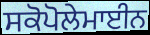
ਸਕੋਪੋਲੇਮਾਈਨ